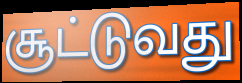
சூட்டுவது